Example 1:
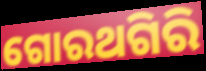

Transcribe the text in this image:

ଗୋରଥଗିରି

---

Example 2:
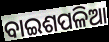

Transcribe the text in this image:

ବାଇଶପଳିଆ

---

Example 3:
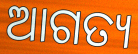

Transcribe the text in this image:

ଆଗତ୍ୟ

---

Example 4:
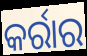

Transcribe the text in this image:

କର୍ରାର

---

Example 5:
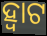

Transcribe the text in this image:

ହ୍ଵାଟ